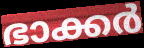
ഭാക്കർ